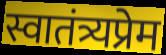
स्वातंत्र्यप्रेम